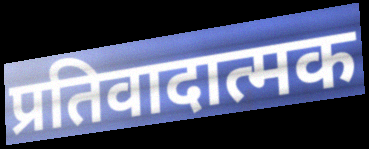
प्रतिवादात्मक